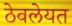
ठेवलेयत